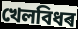
খেলবিধৰ